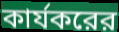
কার্যকরের